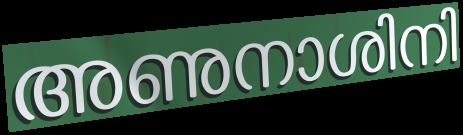
അണുനാശിനി